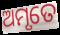
ଅମୃତେ